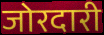
जोरदारी